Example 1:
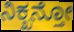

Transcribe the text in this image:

ನಿಕ್ಖನ್ತೋ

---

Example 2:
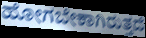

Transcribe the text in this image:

ಹೋಗಬೇಕಾಗಿರುತ್ತದೆ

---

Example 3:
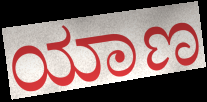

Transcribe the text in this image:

ಯಾಣ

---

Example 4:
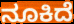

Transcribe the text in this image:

ನೂಕಿದೆ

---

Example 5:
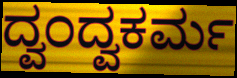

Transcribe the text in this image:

ದ್ವಂದ್ವಕರ್ಮ